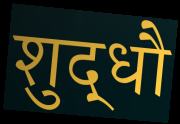
शुद्धौ